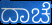
ದಾಚೆ